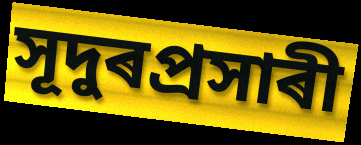
সূদুৰপ্ৰসাৰী